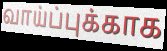
வாய்ப்புக்காக